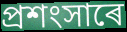
প্ৰশংসাৰে